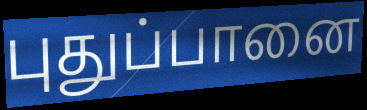
புதுப்பானை